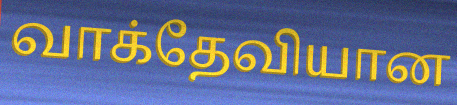
வாக்தேவியான